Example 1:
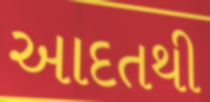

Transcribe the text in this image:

આદતથી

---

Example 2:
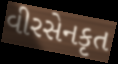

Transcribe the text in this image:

વીરસેનકૃત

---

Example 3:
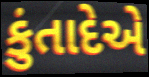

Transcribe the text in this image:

કુંતાદેએ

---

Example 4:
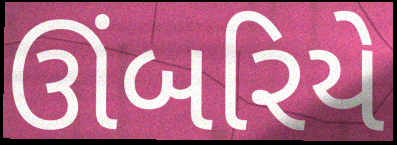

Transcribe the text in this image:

ઊંબરિયે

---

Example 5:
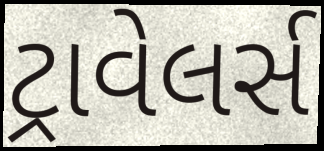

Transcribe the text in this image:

ટ્રાવેલર્સ